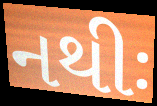
નથીઃ